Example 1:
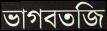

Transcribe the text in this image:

ভাগবতজি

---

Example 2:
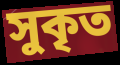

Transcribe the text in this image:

সুকৃত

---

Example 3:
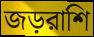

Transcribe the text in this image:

জড়রাশি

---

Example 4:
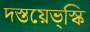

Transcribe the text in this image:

দস্তয়েভ্স্কি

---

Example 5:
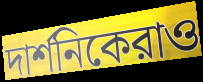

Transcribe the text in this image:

দার্শনিকেরাও